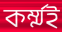
কর্ম্মই